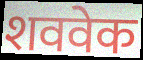
शववेक